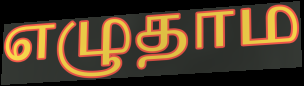
எழுதாம